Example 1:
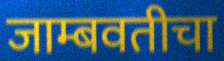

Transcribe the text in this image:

जाम्बवतीचा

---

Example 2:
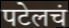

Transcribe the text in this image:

पटेलचं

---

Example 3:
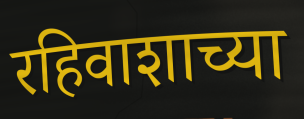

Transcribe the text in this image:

रहिवाशाच्या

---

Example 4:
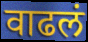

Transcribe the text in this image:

वाढलं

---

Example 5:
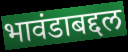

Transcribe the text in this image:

भावंडाबद्दल